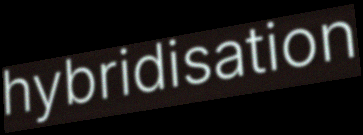
hybridisation